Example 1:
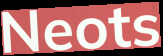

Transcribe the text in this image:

Neots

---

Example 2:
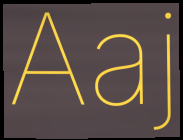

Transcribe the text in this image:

Aaj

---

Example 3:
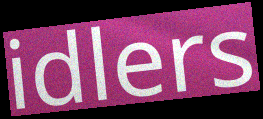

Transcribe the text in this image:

idlers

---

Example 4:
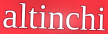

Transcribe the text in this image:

altinchi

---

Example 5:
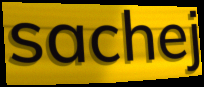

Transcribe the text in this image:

sachej